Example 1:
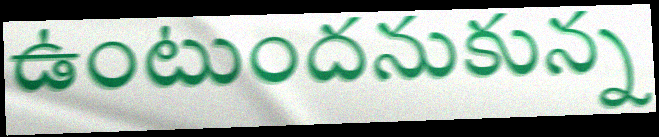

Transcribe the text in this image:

ఉంటుందనుకున్న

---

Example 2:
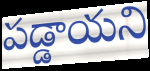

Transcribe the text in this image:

పడ్డాయని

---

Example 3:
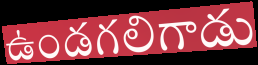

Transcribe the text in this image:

ఉండగలిగాడు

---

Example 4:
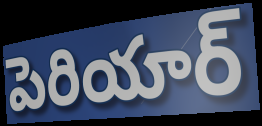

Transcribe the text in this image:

పెరియార్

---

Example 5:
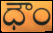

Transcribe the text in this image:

ధౌం